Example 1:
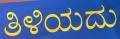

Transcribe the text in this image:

ತಿಳಿಯದು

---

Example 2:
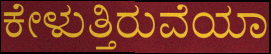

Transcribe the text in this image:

ಕೇಳುತ್ತಿರುವೆಯಾ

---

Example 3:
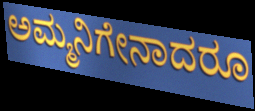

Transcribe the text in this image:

ಅಮ್ಮನಿಗೇನಾದರೂ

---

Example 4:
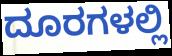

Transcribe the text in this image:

ದೂರಗಳಲ್ಲಿ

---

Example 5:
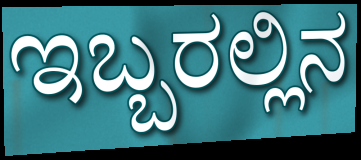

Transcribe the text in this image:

ಇಬ್ಬರಲ್ಲಿನ